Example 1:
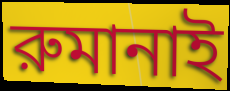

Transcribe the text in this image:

রুমানাই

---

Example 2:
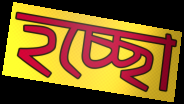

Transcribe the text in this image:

হচ্ছো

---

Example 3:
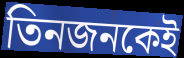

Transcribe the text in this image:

তিনজনকেই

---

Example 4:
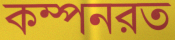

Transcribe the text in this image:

কম্পনরত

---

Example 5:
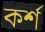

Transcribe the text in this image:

কর্শ